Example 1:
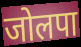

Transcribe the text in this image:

जोलपा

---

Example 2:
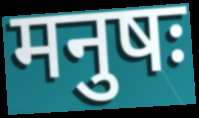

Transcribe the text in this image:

मनुषः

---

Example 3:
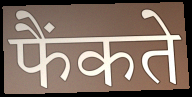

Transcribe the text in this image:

फैंकते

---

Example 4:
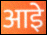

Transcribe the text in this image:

आइे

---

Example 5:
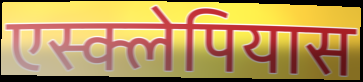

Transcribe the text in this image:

एस्क्लेपियास